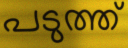
പടുത്ത്